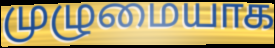
முழுமையாக